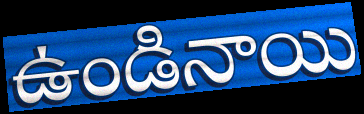
ఉండినాయి